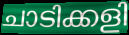
ചാടിക്കളി